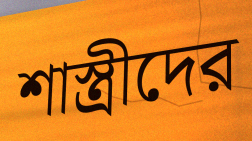
শাস্ত্রীদের